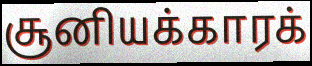
சூனியக்காரக்